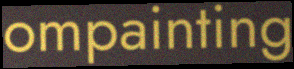
ompainting